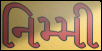
નિમ્મી